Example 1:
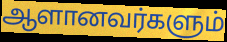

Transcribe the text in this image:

ஆளானவர்களும்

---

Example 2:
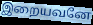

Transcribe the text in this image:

இறையவனே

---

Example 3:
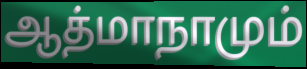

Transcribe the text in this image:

ஆத்மாநாமும்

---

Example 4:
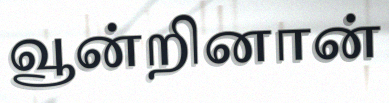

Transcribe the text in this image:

வூன்றினான்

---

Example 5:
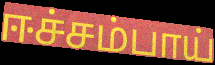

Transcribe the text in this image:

ஈச்சம்பாய்